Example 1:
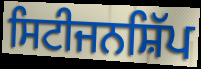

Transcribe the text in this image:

ਸਿਟੀਜਨਸ਼ਿੱਪ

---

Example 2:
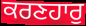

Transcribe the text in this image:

ਕਰਣਹਾਰੁ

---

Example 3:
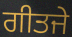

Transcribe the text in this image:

ਗੀਤਜੇ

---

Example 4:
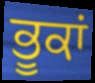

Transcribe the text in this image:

ਭੂਕਾਂ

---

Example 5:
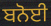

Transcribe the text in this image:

ਬਨੋਈ